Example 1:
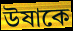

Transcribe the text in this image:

উষাকে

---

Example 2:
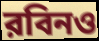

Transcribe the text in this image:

রবিনও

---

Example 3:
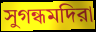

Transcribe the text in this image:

সুগন্ধমদিরা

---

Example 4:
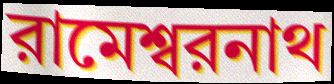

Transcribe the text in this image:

রামেশ্বরনাথ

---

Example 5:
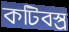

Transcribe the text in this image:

কটিবস্ত্র